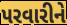
પરવારીને